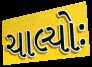
ચાલ્યોઃ